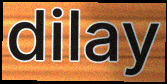
dilay